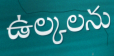
ఉల్కలను